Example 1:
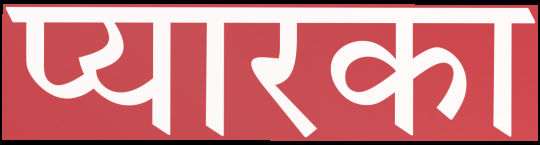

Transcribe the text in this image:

प्यारका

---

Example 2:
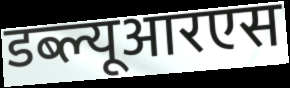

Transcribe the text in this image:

डब्ल्यूआरएस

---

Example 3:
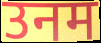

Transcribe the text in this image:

उनम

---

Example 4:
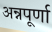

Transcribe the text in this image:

अन्नपूर्णा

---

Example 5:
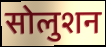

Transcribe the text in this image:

सोलुशन